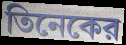
তিনেকের